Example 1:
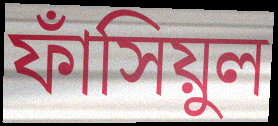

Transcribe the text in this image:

ফাঁসিয়ুল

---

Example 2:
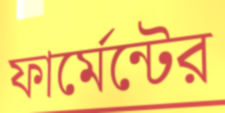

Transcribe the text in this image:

ফার্মেন্টের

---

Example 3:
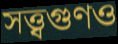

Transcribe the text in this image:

সত্ত্বগুণও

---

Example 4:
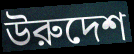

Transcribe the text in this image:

উরুদেশ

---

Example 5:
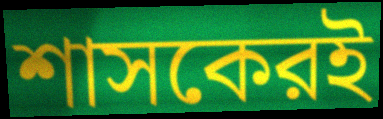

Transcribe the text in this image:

শাসকেরই